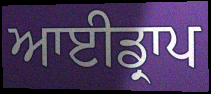
ਆਈਡ੍ਰਾਪ